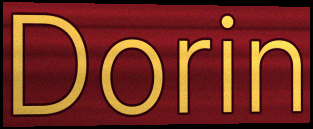
Dorin